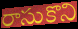
రాసుకొని